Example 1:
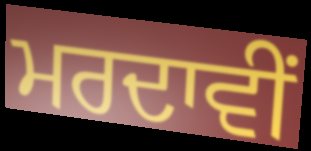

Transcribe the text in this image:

ਮਰਦਾਵੀਂ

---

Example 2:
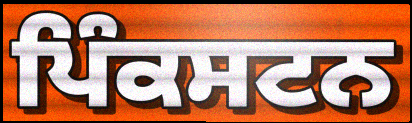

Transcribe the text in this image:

ਪਿੰਕਸਟਨ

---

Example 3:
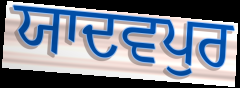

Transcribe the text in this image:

ਯਾਦਵਪੁਰ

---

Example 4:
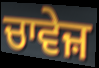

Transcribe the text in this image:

ਚਾਵੇਜ਼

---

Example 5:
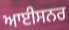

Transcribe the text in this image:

ਆਈਸਨਰ